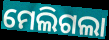
ମେଲିଗଲା